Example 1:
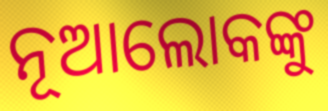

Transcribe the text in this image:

ନୂଆଲୋକଙ୍କୁ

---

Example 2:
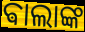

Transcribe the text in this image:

ଵାଲାଙ୍କ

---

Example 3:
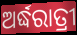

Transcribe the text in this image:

ଅର୍ଦ୍ଧରାତ୍ରୀ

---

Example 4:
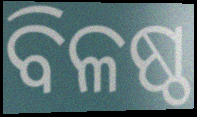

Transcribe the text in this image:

ବିଳଷ୍ଠ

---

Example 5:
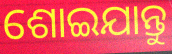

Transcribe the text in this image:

ଶୋଇଯାନ୍ତୁ